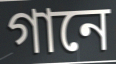
গানে